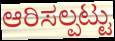
ಆರಿಸಲ್ಪಟ್ಟು